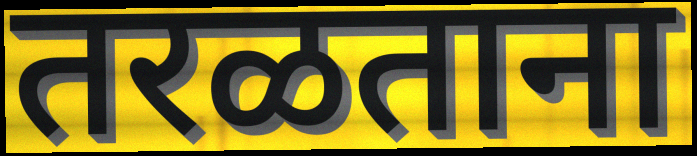
तरळताना